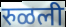
रुळली